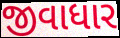
જીવાધાર